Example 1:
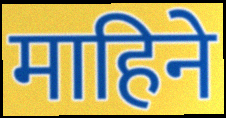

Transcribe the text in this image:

माहिने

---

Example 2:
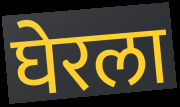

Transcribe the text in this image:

घेरला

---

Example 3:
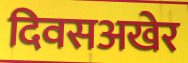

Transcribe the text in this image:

दिवसअखेर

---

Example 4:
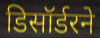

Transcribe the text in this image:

डिसॉर्डरने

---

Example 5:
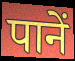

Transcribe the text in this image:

पानें